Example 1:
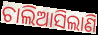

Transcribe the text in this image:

ଚାଲିଆସିଲାଣି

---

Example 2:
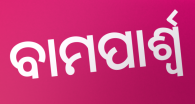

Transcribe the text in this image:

ବାମପାର୍ଶ୍ଵ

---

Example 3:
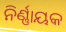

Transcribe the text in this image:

ନିର୍ଣ୍ଣାୟକ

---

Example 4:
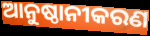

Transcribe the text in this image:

ଆନୁଷ୍ଠାନୀକରଣ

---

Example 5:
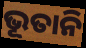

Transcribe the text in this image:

ଭୂତାନି